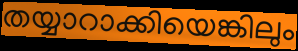
തയ്യാറാക്കിയെങ്കിലും